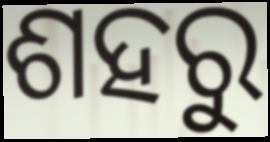
ଶହରୁ